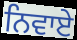
ਨਿਵਾਏ